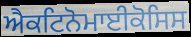
ਐਕਟਿਨੋਮਾਈਕੋਸਿਸ